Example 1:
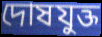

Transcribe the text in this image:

দোষযুক্ত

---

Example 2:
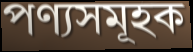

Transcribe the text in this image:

পণ্যসমূহক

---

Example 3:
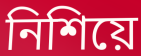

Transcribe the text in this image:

নিশিয়ে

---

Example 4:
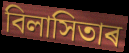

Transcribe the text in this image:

বিলাসিতাৰ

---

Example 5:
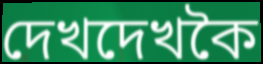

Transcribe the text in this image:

দেখদেখকৈ